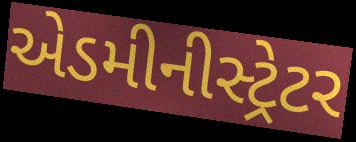
એડમીનીસ્ટ્રેટર